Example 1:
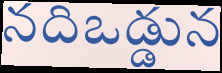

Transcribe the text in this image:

నదిఒడ్డున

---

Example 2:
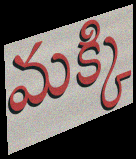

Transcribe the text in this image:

మక్కి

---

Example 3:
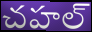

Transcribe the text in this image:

చహల్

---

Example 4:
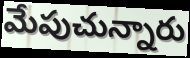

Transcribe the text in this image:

మేపుచున్నారు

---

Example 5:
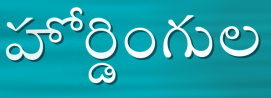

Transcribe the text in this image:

హోర్డింగుల